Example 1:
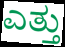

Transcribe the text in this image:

ಎತ್ತು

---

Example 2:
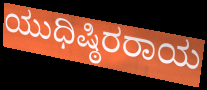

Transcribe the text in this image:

ಯುಧಿಷ್ಠಿರರಾಯ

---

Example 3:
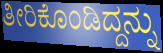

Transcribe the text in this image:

ತೀರಿಕೊಂಡಿದ್ದನ್ನು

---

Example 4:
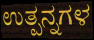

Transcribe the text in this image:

ಉತ್ಪನ್ನಗಳ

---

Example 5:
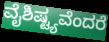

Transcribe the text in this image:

ವೈಶಿಷ್ಟ್ಯವೆಂದರೆ